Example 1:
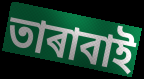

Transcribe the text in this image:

তাৰাবাই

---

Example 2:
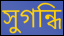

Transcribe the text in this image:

সুগন্ধি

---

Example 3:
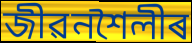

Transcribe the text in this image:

জীৱনশৈলীৰ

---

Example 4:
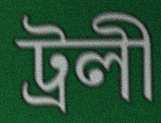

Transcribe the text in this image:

ট্ৰলী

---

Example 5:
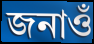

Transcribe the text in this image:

জনাওঁ